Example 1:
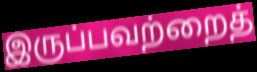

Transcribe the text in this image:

இருப்பவற்றைத்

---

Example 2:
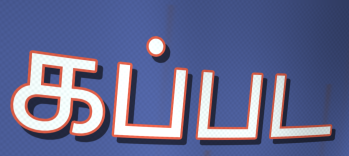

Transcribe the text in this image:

கப்பட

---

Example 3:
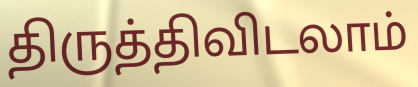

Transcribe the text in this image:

திருத்திவிடலாம்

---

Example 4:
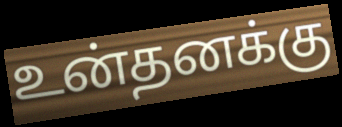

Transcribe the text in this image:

உன்தனக்கு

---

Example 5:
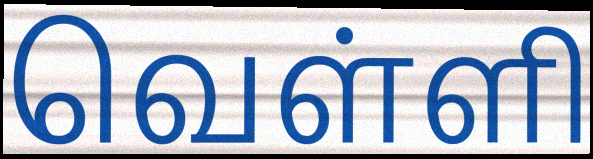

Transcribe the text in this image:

வெள்ளி